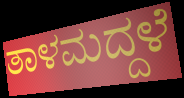
ತಾಳಮದ್ದಳೆ